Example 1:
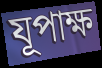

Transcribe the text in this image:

যূপাক্ষ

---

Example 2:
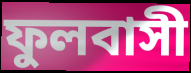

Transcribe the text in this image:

ফুলবাসী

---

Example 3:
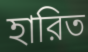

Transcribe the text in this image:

হারিত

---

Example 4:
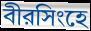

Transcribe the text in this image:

বীরসিংহে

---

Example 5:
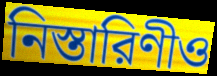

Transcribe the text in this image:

নিস্তারিণীও